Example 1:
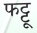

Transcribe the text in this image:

फट्टू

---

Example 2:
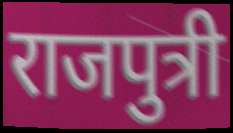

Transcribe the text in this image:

राजपुत्री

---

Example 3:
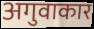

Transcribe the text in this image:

अगुवाकार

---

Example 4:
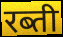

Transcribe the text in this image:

रब्ती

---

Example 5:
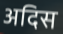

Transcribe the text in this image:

अदिस